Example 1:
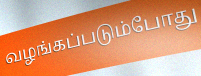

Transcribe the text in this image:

வழங்கப்படும்போது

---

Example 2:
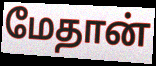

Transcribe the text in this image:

மேதான்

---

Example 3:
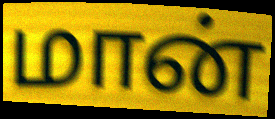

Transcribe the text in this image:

மான்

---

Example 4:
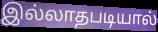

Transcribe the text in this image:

இல்லாதபடியால்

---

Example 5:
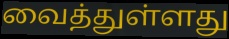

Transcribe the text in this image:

வைத்துள்ளது